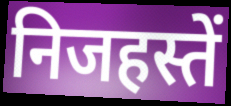
निजहस्तें